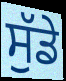
ਸੁੱਡੇ